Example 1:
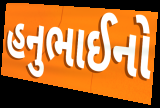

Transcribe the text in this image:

હનુભાઈનો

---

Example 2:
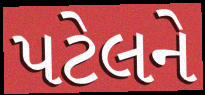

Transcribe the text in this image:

પટેલને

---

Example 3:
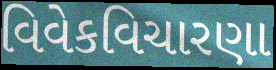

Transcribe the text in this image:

વિવેકવિચારણા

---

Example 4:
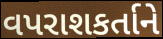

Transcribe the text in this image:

વપરાશકર્તાને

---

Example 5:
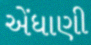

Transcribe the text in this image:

એંધાણી